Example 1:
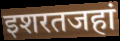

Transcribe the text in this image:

इशरतजहां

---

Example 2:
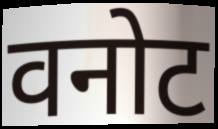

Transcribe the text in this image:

वनोट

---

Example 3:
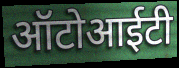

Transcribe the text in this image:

ऑटोआईटी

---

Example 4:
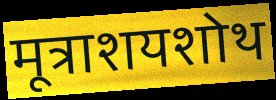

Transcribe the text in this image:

मूत्राशयशोथ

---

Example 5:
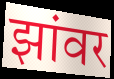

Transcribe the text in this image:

झांवर